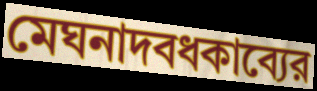
মেঘনাদবধকাব্যের